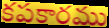
కపకారము